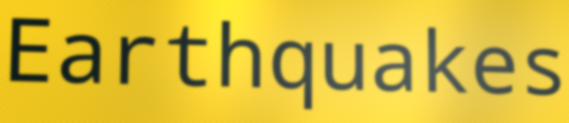
Earthquakes